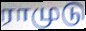
ராமுடு